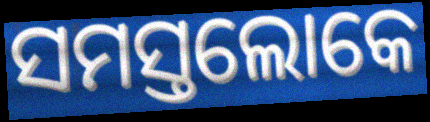
ସମସ୍ତଲୋକେ